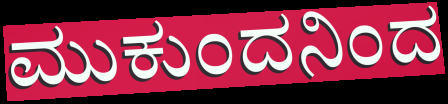
ಮುಕುಂದನಿಂದ